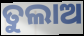
ତୁଲାଅ